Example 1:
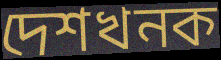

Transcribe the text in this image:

দেশখনক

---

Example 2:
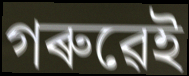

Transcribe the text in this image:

গৰুৱেই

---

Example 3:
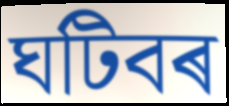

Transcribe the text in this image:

ঘটিবৰ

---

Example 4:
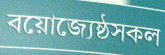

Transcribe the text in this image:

বয়োজ্যেষ্ঠসকল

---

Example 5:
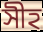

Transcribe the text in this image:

সীহ